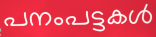
പനംപട്ടകൾ